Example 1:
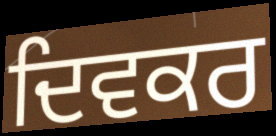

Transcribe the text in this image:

ਦਿਵਕਰ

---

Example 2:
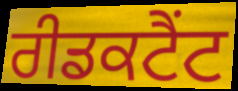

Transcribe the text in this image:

ਰੀਡਕਟੈਂਟ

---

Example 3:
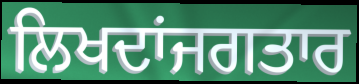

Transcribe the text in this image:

ਲਿਖਦਾਂਜਗਤਾਰ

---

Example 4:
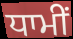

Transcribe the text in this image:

ਧਾਮੀਂ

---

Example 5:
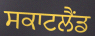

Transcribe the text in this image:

ਸਕਾਟਲੈਂਡ